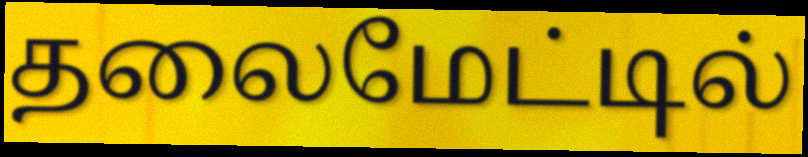
தலைமேட்டில்